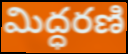
మిద్ధరణి